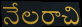
నేలరాచి